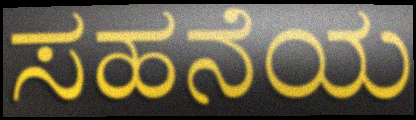
ಸಹನೆಯ